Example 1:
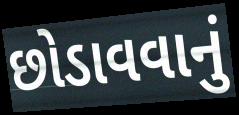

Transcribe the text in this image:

છોડાવવાનું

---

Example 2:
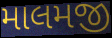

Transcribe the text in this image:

માલમજી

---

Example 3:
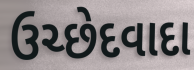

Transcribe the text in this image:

ઉચ્છેદવાદા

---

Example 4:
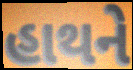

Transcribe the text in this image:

હાથને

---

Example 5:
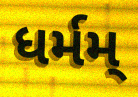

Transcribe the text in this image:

ધર્મમ્